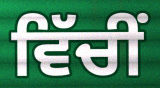
ਵਿੱਚੀਂ